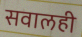
सवालही